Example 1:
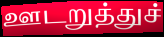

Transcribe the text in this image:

ஊடறுத்துச்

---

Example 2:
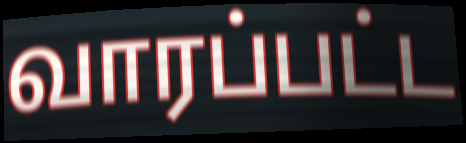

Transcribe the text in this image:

வாரப்பட்ட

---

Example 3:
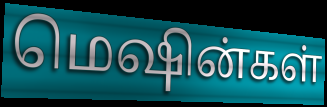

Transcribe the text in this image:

மெஷின்கள்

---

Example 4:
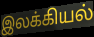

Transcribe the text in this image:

இலக்கியல்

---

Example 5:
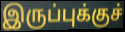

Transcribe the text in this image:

இருப்புக்குச்